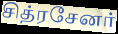
சித்ரசேனர்